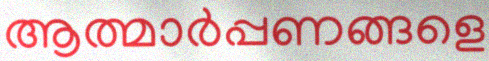
ആത്മാർപ്പണങ്ങളെ